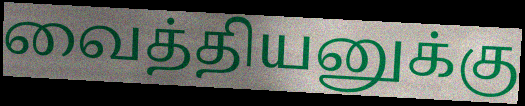
வைத்தியனுக்கு